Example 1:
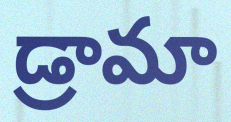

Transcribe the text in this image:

డ్రామా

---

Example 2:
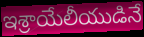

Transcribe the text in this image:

ఇశ్రాయేలీయుడినే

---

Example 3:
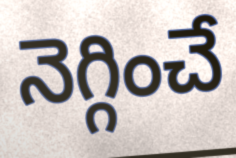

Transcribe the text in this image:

నెగ్గించే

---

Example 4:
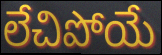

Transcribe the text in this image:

లేచిపోయే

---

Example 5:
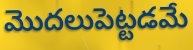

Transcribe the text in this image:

మొదలుపెట్టడమే